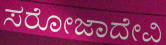
ಸರೋಜಾದೇವಿ